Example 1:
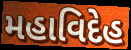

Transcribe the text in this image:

મહાવિદેહ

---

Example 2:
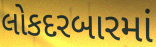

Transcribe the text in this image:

લોકદરબારમાં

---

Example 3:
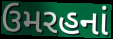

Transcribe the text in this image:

ઉમરહનાં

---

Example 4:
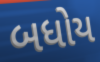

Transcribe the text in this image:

બધોય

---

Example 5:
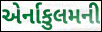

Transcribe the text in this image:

એર્નાકુલમની